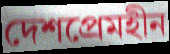
দেশপ্রেমহীন